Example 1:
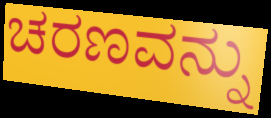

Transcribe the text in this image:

ಚರಣವನ್ನು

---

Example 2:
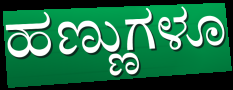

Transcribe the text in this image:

ಹಣ್ಣುಗಳೂ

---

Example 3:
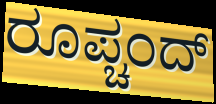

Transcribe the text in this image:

ರೂಪ್ಚಂದ್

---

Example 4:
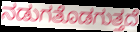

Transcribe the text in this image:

ನಡುಗತೊಡಗುತ್ತದೆ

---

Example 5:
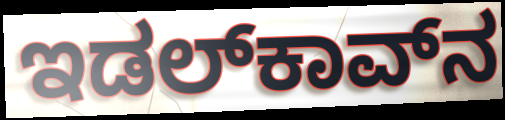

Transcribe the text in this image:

ಇಡಲ್‌ಕಾವ್‌ನ